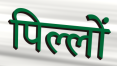
पिल्लों